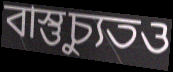
বাস্তুচ্যুতও